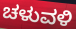
ಚಳುವಳಿ